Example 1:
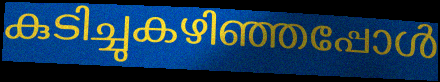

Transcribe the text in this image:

കുടിച്ചുകഴിഞ്ഞപ്പോൾ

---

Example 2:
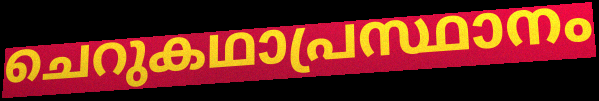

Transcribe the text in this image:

ചെറുകഥാപ്രസ്ഥാനം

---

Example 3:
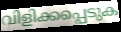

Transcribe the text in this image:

വിളിക്കപ്പെടുക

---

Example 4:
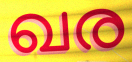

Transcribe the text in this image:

ഖര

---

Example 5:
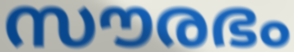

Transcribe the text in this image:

സൗരഭം